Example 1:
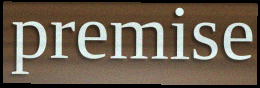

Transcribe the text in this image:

premise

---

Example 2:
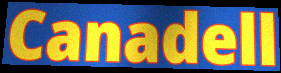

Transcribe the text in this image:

Canadell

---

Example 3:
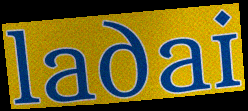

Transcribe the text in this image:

ladai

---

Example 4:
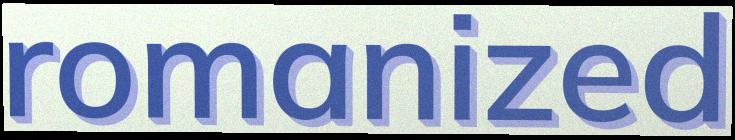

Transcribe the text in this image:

romanized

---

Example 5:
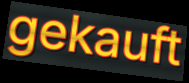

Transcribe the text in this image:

gekauft